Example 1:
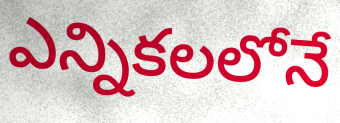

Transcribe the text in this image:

ఎన్నికలలోనే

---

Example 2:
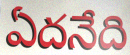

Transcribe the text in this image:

ఏదనేది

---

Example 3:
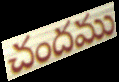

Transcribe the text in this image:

చందము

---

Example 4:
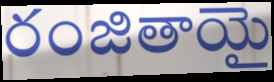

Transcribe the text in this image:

రంజితాయై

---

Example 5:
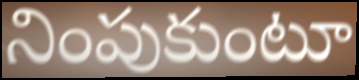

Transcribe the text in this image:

నింపుకుంటూ